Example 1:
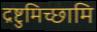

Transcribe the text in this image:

द्रष्टुमिच्छामि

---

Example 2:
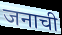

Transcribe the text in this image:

जनाची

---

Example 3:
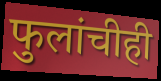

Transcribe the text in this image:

फुलांचीही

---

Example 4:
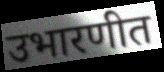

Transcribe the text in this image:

उभारणीत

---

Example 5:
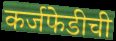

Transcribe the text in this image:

कर्जफेडीची